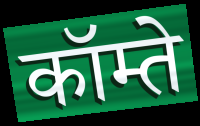
कॉम्ते